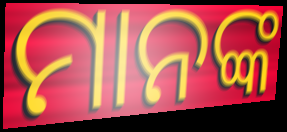
ମାନଙ୍କ